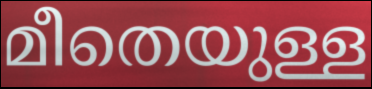
മീതെയുള്ള